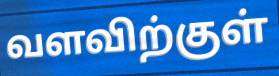
வளவிற்குள்